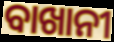
ବାଖାନୀ